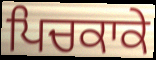
ਪਿਚਕਾਕੇ